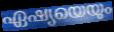
ഏഷ്യയെയും